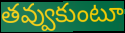
తవ్వుకుంటూ